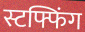
स्टफ्फिंग